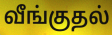
வீங்குதல்